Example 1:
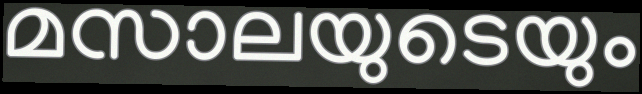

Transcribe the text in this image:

മസാലയുടെയും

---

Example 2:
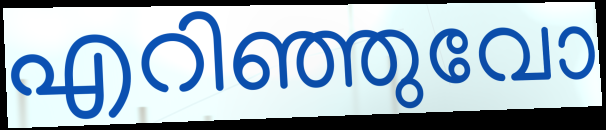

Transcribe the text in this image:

എറിഞ്ഞുവോ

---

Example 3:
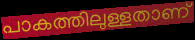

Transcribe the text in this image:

പാകത്തിലുള്ളതാണ്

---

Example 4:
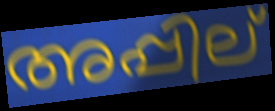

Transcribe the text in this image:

അപ്പില്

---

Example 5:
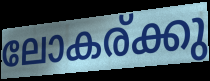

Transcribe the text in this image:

ലോകര്ക്കു